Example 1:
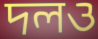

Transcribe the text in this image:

দলও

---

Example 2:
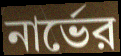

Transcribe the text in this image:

নার্ভের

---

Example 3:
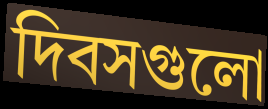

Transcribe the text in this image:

দিবসগুলো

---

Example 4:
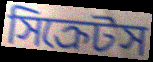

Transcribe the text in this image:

সিক্রেটস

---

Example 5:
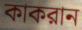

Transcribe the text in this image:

কাকরান